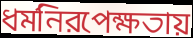
ধর্মনিরপেক্ষতায়